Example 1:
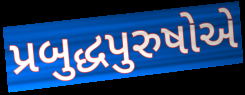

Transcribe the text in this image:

પ્રબુદ્ધપુરુષોએ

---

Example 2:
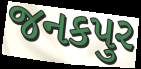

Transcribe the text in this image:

જનકપુર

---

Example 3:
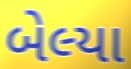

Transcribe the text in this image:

બેલ્યા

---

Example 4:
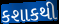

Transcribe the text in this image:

કશાકથી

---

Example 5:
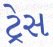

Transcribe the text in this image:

ટ્રેસ